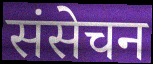
संसेचन